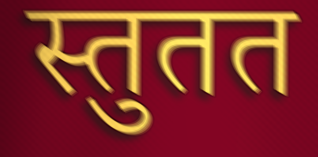
स्तुतत